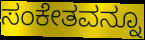
ಸಂಕೇತವನ್ನೂ